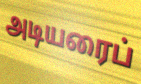
அடியரைப்